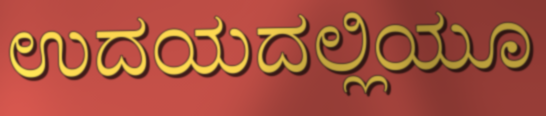
ಉದಯದಲ್ಲಿಯೂ